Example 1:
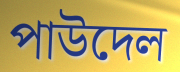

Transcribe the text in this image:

পাউদেল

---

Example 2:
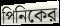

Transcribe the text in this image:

পিনিকের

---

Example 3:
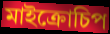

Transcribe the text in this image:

মাইক্রোচিপ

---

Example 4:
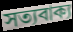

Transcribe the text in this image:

সত্যবাক্য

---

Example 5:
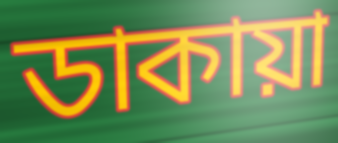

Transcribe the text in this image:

ডাকায়া